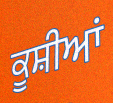
ਕੂਸ਼ੀਆਂ